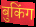
बुकिंग